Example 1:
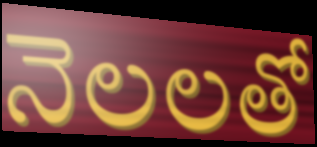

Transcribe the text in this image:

నెలలతో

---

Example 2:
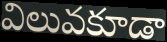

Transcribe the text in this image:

విలువకూడా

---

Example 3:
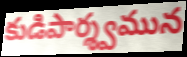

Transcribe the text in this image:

కుడిపార్శ్వమున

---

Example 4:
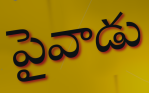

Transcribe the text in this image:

పైవాడు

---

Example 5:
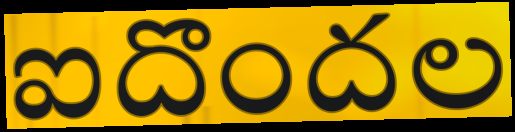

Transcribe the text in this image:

ఐదొందల